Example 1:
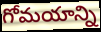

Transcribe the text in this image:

గోమయాన్ని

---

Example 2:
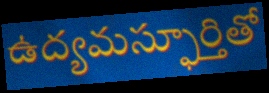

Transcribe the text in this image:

ఉద్యమస్ఫూర్తితో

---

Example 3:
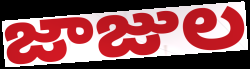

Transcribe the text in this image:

జాజుల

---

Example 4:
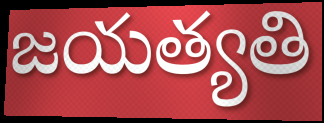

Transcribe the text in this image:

జయత్యతి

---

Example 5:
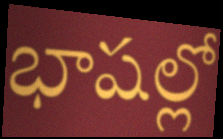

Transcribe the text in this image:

భాషల్లో